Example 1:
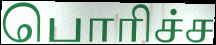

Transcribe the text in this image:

பொரிச்ச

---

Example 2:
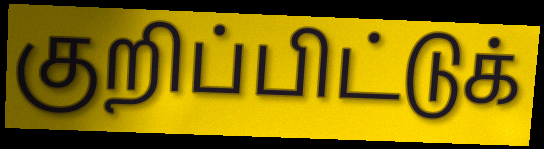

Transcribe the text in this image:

குறிப்பிட்டுக்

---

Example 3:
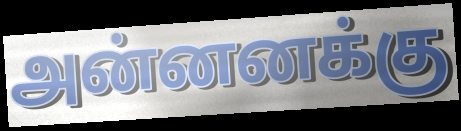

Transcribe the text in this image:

அன்னனக்கு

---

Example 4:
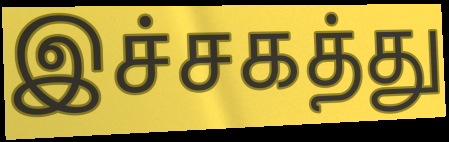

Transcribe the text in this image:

இச்சகத்து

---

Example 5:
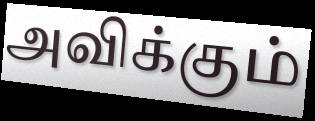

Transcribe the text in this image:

அவிக்கும்